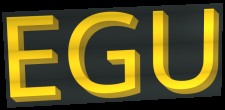
EGU